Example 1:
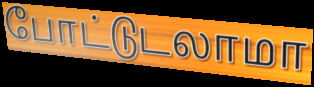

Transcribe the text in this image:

போட்டுடலாமா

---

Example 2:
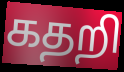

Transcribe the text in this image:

கதறி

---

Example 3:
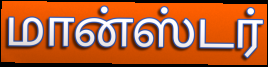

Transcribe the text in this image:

மான்ஸ்டர்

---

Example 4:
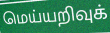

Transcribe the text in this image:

மெய்யறிவுக்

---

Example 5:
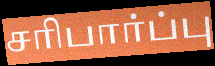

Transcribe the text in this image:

சரிபார்ப்பு